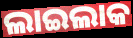
ଲାଇଲାକ